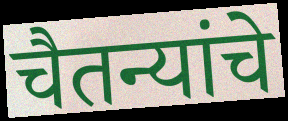
चैतन्यांचे